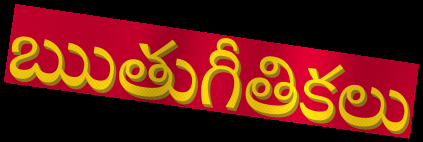
ఋతుగీతికలు